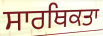
ਸਾਰਥਿਕਤਾ